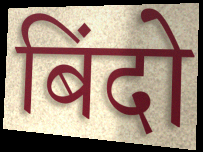
बिंदो